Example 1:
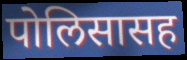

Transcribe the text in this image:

पोलिसासह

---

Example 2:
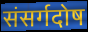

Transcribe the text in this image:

संसर्गदोष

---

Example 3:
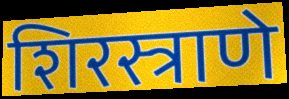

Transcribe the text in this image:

शिरस्त्राणे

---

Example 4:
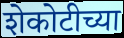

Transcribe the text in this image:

शेकोटीच्या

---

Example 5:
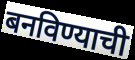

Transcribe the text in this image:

बनविण्याची